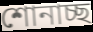
শোনাচ্ছ